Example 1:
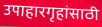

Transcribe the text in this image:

उपाहारगृहांसाठी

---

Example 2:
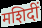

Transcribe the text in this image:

मशिदीं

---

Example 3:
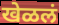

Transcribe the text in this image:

खेळलं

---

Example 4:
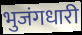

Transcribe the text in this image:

भुजंगधारी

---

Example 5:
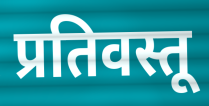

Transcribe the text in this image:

प्रतिवस्तू